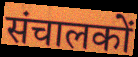
संचालकों